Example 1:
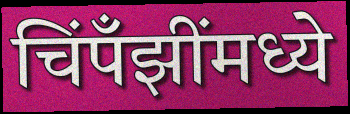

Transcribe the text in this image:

चिंपँझींमध्ये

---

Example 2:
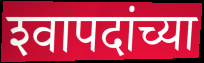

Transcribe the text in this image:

श्‍वापदांच्या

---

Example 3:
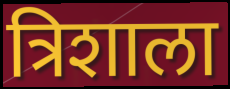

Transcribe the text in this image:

त्रिशाला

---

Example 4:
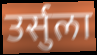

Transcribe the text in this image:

उर्सुला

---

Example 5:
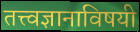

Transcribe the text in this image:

तत्त्वज्ञानाविषयी